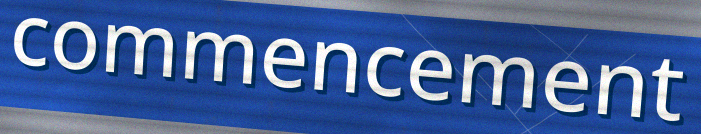
commencement